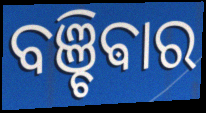
ବଞ୍ଚିଵାର